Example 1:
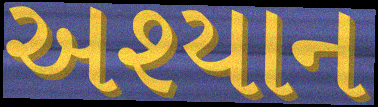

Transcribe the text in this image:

અશ્યાન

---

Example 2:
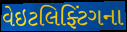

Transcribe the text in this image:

વેઇટલિફ્ટિંગના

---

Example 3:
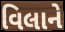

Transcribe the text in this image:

વિલાને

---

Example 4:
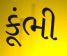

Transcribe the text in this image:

કૂંભી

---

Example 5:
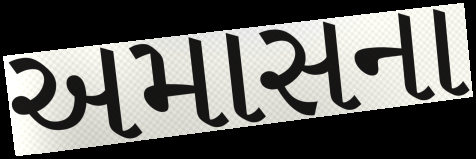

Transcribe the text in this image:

અમાસના